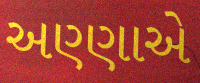
અણ્ણાએ